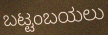
ಬಟ್ಟಂಬಯಲು